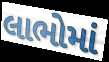
લાભોમાં